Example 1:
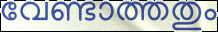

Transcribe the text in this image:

വേണ്ടാത്തതും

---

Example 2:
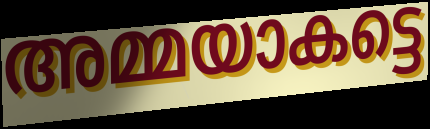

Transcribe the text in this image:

അമ്മയാകട്ടെ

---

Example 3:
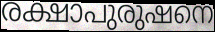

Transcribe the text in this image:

രക്ഷാപുരുഷനെ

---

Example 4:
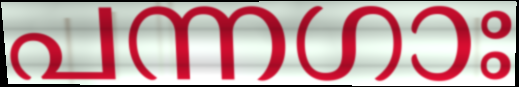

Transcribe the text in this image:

പന്നഗാഃ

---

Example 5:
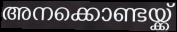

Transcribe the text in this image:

അനക്കൊണ്ടയ്ക്ക്